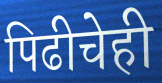
पिढीचेही